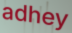
adhey